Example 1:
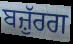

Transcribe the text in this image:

ਬਜ਼ੁੱਰਗ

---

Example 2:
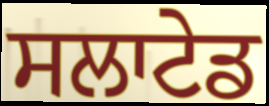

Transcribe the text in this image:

ਸਲਾਟੇਡ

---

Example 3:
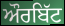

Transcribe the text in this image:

ਔਰਬਿੱਟ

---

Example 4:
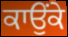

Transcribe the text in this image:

ਕਾਉਂਕੇ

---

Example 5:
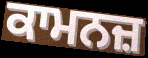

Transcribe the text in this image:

ਕਾਮਨਜ਼